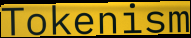
Tokenism